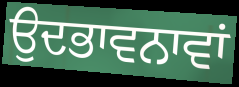
ਉਦਭਾਵਨਾਵਾਂ